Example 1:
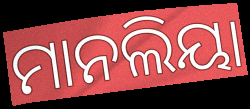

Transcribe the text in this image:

ମାନଲିୟା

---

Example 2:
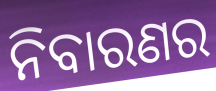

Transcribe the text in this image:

ନିବାରଣର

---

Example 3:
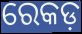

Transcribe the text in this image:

ରେକଡ଼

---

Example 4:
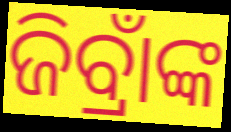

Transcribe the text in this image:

ଜିବ୍ରାଁଙ୍କ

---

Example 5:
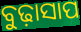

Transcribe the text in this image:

ବୁଢ଼ାସାପ